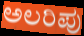
ಅಲರಿಪು